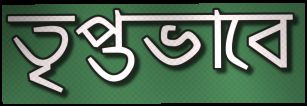
তৃপ্তভাবে